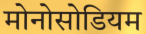
मोनोसोडियम